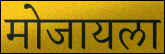
मोजायला